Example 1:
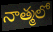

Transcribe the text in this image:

నాత్మలో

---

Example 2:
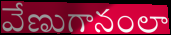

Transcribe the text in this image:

వేణుగానంలా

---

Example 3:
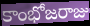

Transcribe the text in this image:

కాంభోజరాజు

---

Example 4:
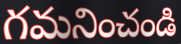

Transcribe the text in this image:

గమనించండి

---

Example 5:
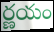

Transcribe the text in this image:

ర్ణయం